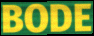
BODE